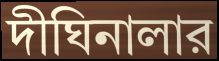
দীঘিনালার